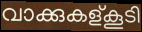
വാക്കുകള്കൂടി